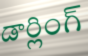
డార్లింగ్